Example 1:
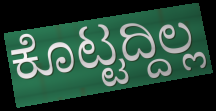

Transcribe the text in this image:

ಕೊಟ್ಟದ್ದಿಲ್ಲ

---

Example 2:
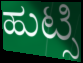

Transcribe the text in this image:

ಹುಟ್ಸಿ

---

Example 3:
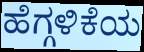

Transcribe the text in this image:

ಹೆಗ್ಗಳಿಕೆಯ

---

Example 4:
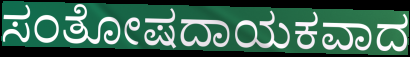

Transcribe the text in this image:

ಸಂತೋಷದಾಯಕವಾದ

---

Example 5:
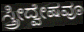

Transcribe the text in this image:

ಸ್ತ್ರೀದ್ವೇಷವೂ